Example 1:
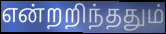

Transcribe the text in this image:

என்றறிந்ததும்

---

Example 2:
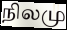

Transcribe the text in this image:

நிலமு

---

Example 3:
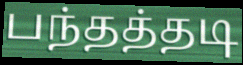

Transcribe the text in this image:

பந்தத்தடி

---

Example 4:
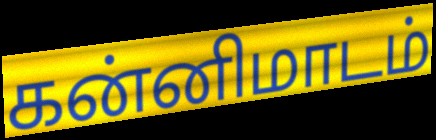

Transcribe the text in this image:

கன்னிமாடம்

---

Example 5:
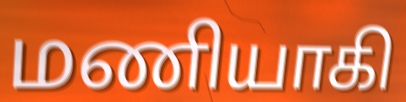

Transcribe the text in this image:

மணியாகி